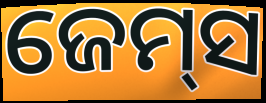
ଜେମ୍‌ସ